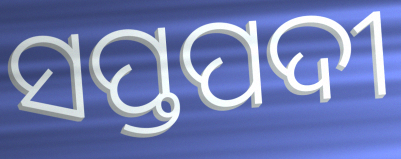
ସପ୍ତପଦୀ